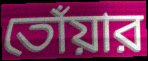
তোঁয়ার